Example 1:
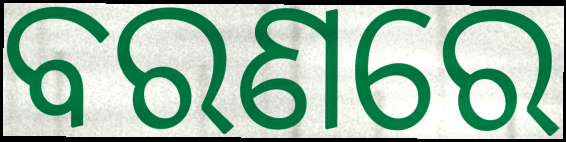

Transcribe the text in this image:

ବରଣରେ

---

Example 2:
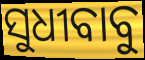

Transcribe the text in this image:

ସୁଧୀବାବୁ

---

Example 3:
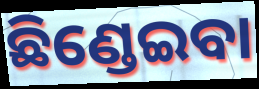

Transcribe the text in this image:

ଛିଣ୍ଡେଇବା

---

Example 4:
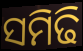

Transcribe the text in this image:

ସମିଢି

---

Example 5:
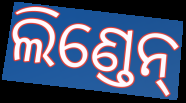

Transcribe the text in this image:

ଲିଣ୍ଡେନ୍